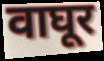
वाघूर